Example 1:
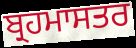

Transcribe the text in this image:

ਬ੍ਰਹਮਾਸਤਰ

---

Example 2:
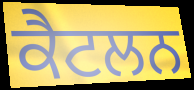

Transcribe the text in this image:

ਕੈਟਲਨ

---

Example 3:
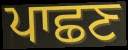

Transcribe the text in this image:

ਪਾਛਣ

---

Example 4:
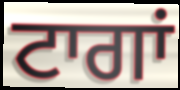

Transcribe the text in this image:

ਟਾਗਾਂ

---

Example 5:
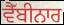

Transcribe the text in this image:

ਵੈੱਬੀਨਾਰ